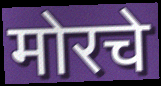
मोरचे